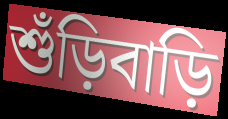
শুঁড়িবাড়ি